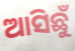
ଆସିଛୁଁ